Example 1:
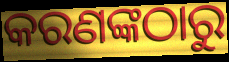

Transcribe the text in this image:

କରଣଙ୍କଠାରୁ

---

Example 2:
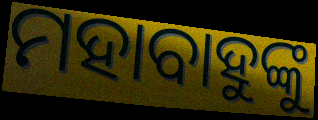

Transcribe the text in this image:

ମହାବାହୁଙ୍କୁ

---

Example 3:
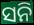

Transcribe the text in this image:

ସନି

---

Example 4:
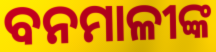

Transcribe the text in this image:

ବନମାଳୀଙ୍କ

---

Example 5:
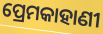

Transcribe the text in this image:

ପ୍ରେମକାହାଣୀ